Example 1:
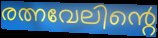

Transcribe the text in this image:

രത്നവേലിന്റെ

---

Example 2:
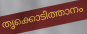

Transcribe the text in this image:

തൃക്കൊടിത്താനം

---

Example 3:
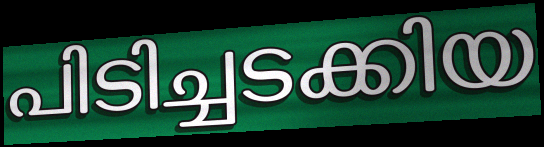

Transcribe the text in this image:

പിടിച്ചടക്കിയ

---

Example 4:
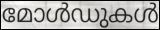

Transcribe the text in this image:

മോൾഡുകൾ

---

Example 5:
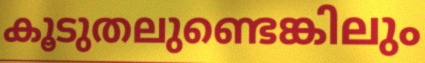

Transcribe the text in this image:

കൂടുതലുണ്ടെങ്കിലും